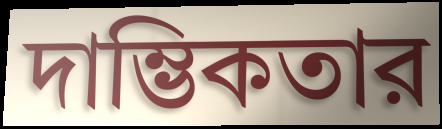
দাম্ভিকতার